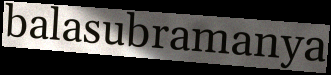
balasubramanya